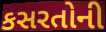
કસરતોની